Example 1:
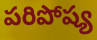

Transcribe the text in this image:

పరిపోష్య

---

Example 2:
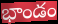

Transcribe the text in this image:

భాండం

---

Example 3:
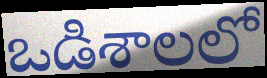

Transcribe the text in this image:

ఒడిశాలలో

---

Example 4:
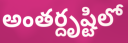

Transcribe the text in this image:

అంతర్దృష్టిలో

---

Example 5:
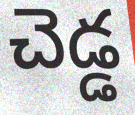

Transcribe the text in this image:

చెడ్డ